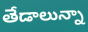
తేడాలున్నా